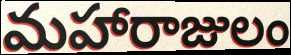
మహారాజులం